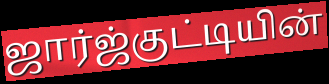
ஜார்ஜ்குட்டியின்